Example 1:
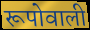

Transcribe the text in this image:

रूपोवाली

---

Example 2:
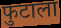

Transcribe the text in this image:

फुटाला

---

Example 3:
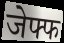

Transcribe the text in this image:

जेफ्फ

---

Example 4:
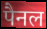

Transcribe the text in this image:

पैनल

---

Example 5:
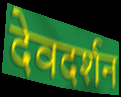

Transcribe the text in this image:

देवदर्शन